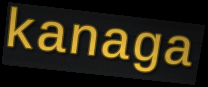
kanaga